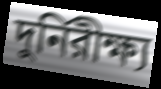
দুর্নিরীক্ষ্য